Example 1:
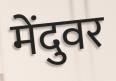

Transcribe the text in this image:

मेंदुवर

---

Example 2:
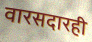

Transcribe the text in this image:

वारसदारही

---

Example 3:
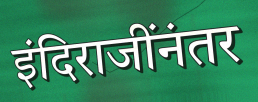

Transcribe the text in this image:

इंदिराजींनंतर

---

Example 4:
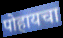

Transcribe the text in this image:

पोहायचा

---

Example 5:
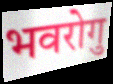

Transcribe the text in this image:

भवरोगु